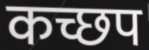
कच्छप